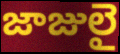
జాజులై